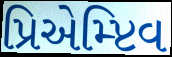
પ્રિએમ્પ્ટિવ